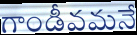
గాండీవమనే